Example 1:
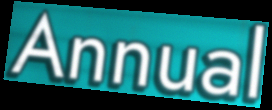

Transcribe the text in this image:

Annual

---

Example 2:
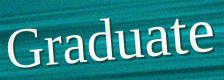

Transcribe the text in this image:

Graduate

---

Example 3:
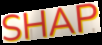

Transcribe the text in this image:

SHAP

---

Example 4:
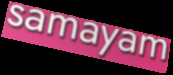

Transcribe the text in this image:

samayam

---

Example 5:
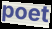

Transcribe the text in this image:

poet